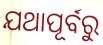
ଯଥାପୂର୍ବରୁ